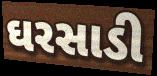
ઘરસાડી